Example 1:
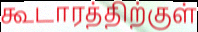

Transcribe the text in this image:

கூடாரத்திற்குள்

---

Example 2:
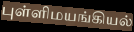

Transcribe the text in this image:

புள்ளிமயங்கியல்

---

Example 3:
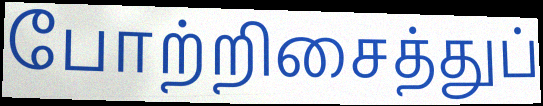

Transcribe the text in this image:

போற்றிசைத்துப்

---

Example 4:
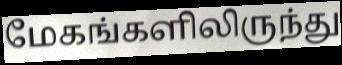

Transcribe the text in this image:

மேகங்களிலிருந்து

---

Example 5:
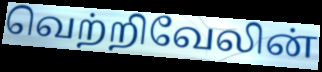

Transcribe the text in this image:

வெற்றிவேலின்